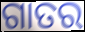
ଗାତର